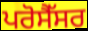
ਪਰੋਸੈੱਸਰ